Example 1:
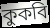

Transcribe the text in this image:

কুকবি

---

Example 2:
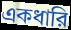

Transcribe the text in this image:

একধারি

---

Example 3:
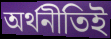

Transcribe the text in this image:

অর্থনীতিই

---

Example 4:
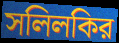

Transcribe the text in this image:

সলিলকির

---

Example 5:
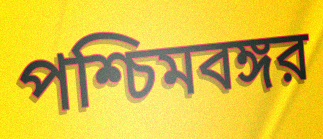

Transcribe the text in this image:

পশ্চিমবঙ্গর